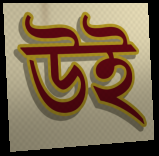
উই